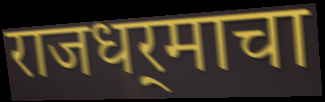
राजधर्माचा